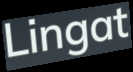
Lingat